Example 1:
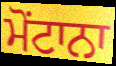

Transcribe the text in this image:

ਮੋਂਟਾਨਾ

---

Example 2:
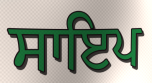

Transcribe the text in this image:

ਸਾਇਪ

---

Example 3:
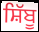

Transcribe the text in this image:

ਸ਼ਿੱਬੂ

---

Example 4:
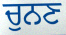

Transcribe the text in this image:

ਚੁਨਣ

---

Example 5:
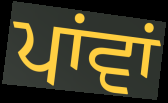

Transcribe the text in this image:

ਪਾਂਵਾਂ